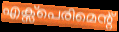
എക്സ്പെരിമെന്റ്